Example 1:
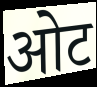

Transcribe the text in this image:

ओट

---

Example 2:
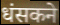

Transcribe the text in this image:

धंसकने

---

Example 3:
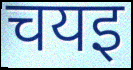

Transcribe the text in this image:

चयइ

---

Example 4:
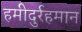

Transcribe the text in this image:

हमीदुर्रहमान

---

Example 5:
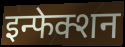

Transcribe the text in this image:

इन्फेक्शन